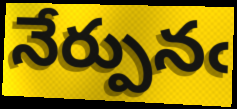
నేర్పునఁ